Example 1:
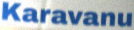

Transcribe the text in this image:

Karavanu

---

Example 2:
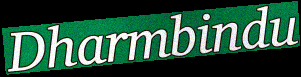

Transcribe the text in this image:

Dharmbindu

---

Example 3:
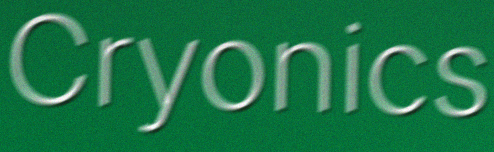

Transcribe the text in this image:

Cryonics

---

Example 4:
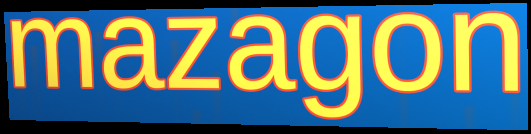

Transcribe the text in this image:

mazagon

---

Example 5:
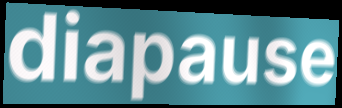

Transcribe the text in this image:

diapause